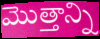
మొత్తాన్ని